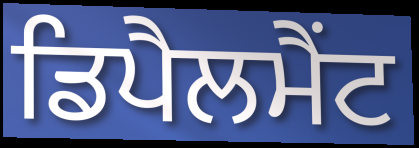
ਡਿਪੈਲਮੈਂਟ